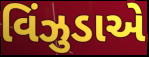
વિંઝુડાએ